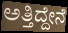
ಅತ್ತಿದ್ದೇನೆ